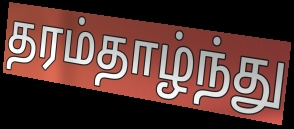
தரம்தாழ்ந்து